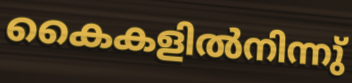
കൈകളിൽനിന്നു്